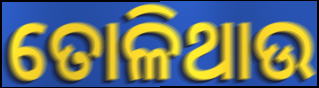
ତୋଳିଥାଉ